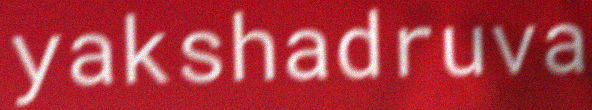
yakshadruva